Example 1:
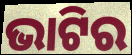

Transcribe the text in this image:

ଭାଟିର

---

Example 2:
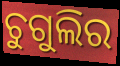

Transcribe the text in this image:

ଚୁଗୁଲିର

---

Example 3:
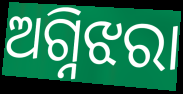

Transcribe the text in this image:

ଅଗ୍ନିଝରା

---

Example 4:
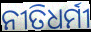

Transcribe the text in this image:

ନୀତିଧର୍ମୀ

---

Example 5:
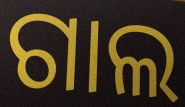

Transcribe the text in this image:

ଗାଲ